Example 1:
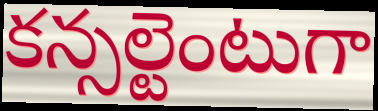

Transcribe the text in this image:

కన్సల్టెంటుగా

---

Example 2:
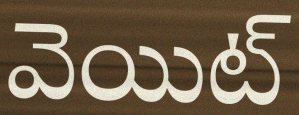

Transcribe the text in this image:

వెయిట్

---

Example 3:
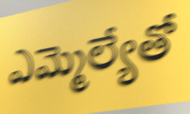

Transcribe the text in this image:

ఎమ్మెల్యేతో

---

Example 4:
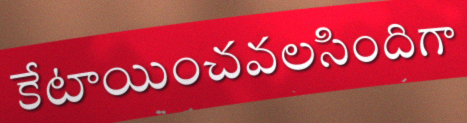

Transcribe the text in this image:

కేటాయించవలసిందిగా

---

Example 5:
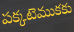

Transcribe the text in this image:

పక్కటెముకకు